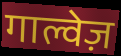
गाल्वेज़